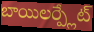
బాయిలర్ప్లేట్